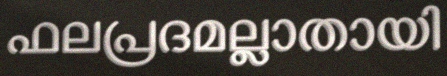
ഫലപ്രദമല്ലാതായി